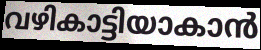
വഴികാട്ടിയാകാൻ